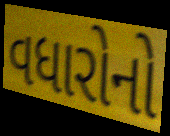
વધારોનો